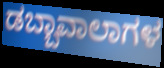
ಡಬ್ಬಾವಾಲಾಗಳ